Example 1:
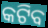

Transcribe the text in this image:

କଟିବ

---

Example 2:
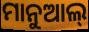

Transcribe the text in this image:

ମାନୁଆଲ୍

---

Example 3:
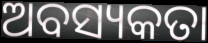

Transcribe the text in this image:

ଅବସ୍ୟକତା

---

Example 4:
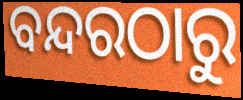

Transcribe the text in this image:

ବନ୍ଦରଠାରୁ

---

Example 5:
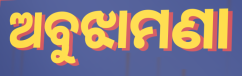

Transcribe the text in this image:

ଅବୁଝାମଣା